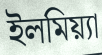
ইলমিয়্যা